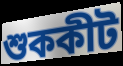
শুককীট